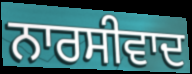
ਨਾਰਸੀਵਾਦ